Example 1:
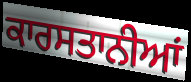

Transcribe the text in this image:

ਕਾਰਸਤਾਨੀਆਂ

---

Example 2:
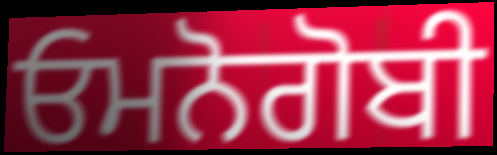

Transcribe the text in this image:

ਓਮਨੋਗੋਬੀ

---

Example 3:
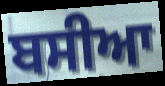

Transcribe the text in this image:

ਬਸੀਆ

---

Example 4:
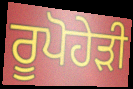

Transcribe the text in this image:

ਰੂਪੋਹੇੜੀ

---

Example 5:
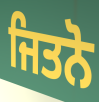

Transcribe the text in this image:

ਜਿਤਨੋ